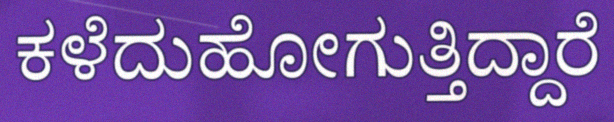
ಕಳೆದುಹೋಗುತ್ತಿದ್ದಾರೆ